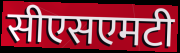
सीएसएमटी